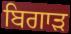
ਬਿਗਾੜ